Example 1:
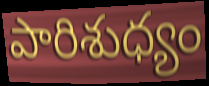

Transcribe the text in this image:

పారిశుధ్యం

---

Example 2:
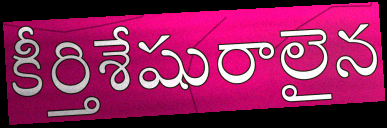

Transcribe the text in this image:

కీర్తిశేషురాలైన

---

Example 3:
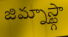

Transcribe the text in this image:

జిమ్నాస్ట్గా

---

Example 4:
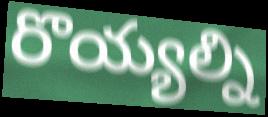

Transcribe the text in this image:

రొయ్యల్ని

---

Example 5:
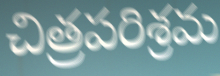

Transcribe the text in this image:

చిత్రపరిశ్రమ